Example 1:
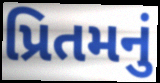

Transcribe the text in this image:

પ્રિતમનું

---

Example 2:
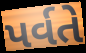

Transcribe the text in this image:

પર્વતે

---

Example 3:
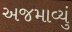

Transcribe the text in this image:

અજમાવ્યું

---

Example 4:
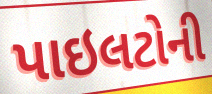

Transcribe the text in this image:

પાઇલટોની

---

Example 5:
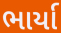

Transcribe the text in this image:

ભાર્યા